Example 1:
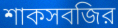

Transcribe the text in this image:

শাকসবজির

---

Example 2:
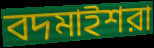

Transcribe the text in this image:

বদমাইশরা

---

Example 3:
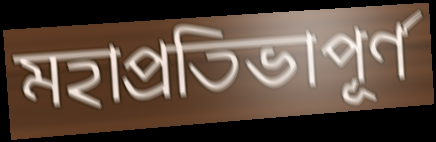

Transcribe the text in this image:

মহাপ্রতিভাপূর্ণ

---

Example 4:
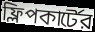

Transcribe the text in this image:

ফ্লিপকার্টের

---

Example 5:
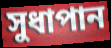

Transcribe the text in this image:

সুধাপান